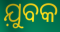
ଯ଼ୁବକ